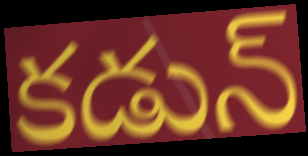
కడున్